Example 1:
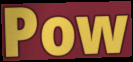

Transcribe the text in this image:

Pow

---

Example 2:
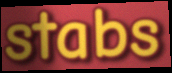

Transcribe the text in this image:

stabs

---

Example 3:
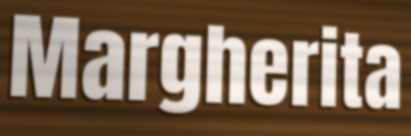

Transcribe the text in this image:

Margherita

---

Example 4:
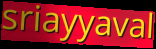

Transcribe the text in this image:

sriayyaval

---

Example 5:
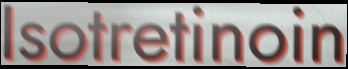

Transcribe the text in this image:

Isotretinoin